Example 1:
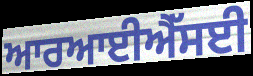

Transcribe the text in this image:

ਆਰਆਈਐੱਸਈ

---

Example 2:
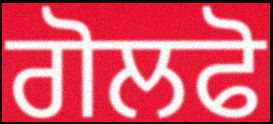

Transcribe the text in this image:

ਗੋਲਫੋ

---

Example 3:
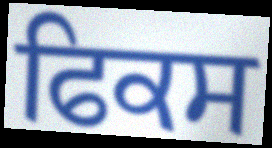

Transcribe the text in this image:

ਫਿਕਸ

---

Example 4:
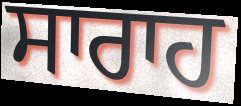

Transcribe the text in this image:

ਸਾਰਾਹ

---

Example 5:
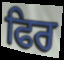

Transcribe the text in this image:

ਫਿਰ